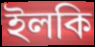
ইলকি